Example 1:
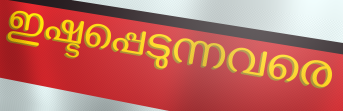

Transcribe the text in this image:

ഇഷ്ടപ്പെടുന്നവരെ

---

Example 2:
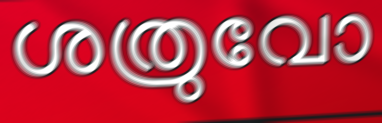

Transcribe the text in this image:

ശത്രുവോ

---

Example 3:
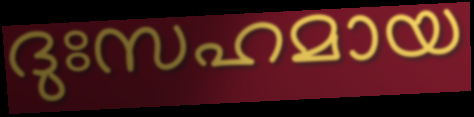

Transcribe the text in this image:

ദുഃസഹമായ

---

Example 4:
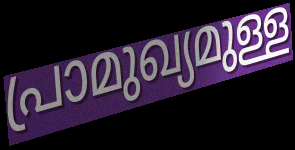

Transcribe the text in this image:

പ്രാമുഖ്യമുള്ള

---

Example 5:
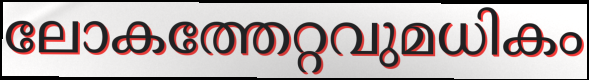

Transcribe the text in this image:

ലോകത്തേറ്റവുമധികം